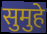
सुमुहे